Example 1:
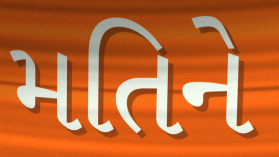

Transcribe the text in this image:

મતિને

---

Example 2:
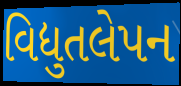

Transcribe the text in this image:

વિદ્યુતલેપન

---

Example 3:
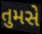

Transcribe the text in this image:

તુમસે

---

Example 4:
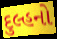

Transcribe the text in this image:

દુલ્હનો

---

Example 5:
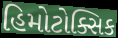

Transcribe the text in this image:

હિમોટોક્સિક